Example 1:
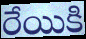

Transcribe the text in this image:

రేయికి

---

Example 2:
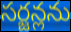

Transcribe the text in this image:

సర్జన్లను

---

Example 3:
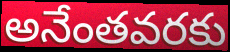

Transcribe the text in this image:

అనేంతవరకు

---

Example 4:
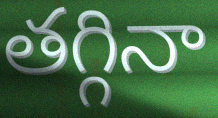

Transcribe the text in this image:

తగ్గినా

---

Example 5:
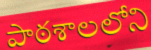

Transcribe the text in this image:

పాఠశాలలోని